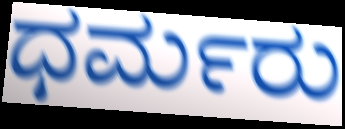
ಧರ್ಮರು